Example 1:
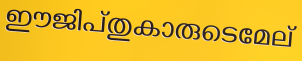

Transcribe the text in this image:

ഈജിപ്തുകാരുടെമേല്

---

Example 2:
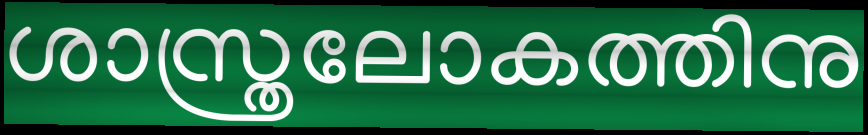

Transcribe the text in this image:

ശാസ്ത്രലോകത്തിനു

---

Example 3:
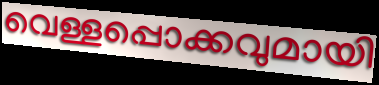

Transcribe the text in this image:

വെള്ളപ്പൊക്കവുമായി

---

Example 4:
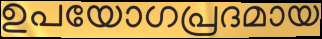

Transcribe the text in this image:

ഉപയോഗപ്രദമായ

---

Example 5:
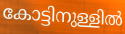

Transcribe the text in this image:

കോട്ടിനുള്ളിൽ